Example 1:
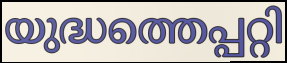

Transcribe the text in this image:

യുദ്ധത്തെപ്പറ്റി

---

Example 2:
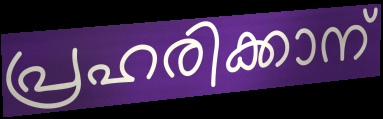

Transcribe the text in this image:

പ്രഹരിക്കാന്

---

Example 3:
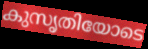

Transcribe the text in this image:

കുസൃതിയോടെ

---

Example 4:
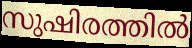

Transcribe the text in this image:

സുഷിരത്തിൽ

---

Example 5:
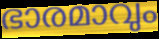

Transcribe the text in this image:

ഭാരമാവും